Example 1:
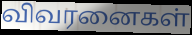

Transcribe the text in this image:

விவரனைகள்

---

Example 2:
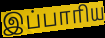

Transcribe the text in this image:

இப்பாரிய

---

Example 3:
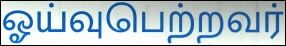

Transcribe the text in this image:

ஓய்வுபெற்றவர்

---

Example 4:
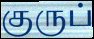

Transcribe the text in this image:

குருப்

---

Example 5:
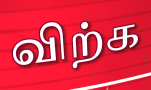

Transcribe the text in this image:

விற்க